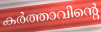
കർത്താവിന്റെ